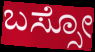
ಬಸ್ಸೋ